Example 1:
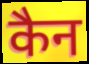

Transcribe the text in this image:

कैन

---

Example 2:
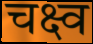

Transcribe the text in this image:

चक्ष्व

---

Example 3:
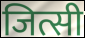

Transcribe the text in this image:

जित्सी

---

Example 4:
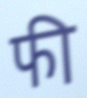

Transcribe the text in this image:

फी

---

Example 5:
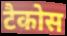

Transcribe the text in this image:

टैकोस